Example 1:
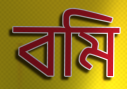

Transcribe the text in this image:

বমি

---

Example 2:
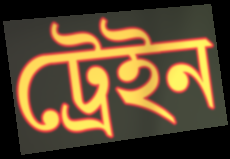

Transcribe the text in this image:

ট্ৰেইন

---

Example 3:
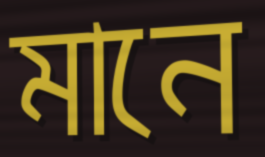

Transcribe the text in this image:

মানে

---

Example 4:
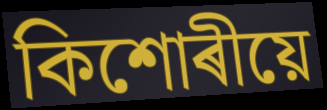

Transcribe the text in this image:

কিশোৰীয়ে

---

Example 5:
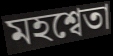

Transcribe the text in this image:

মহশ্বেতা